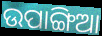
ଉପାଙ୍ଗିଆ